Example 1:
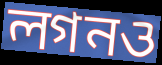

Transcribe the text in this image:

লগনও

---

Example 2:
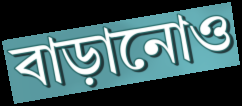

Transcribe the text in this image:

বাড়ানোও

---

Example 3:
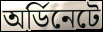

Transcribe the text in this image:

অর্ডিনেটে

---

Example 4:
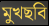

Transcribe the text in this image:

মুখছবি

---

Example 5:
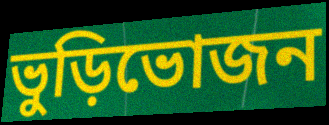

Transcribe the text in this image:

ভুড়িভোজন